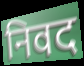
निवद